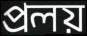
প্রলয়